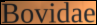
Bovidae